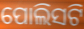
ପୋଲିସଟି